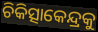
ଚିକିତ୍ସାକେନ୍ଦ୍ରକୁ